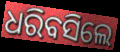
ଧରିବସିଲେ